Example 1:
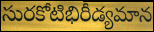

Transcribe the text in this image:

సురకోటిభిరీడ్యమాన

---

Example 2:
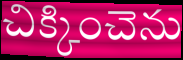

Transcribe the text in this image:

చిక్కించెను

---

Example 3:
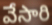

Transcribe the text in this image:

వేసారి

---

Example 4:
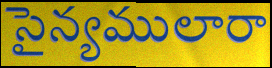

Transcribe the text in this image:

సైన్యములారా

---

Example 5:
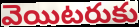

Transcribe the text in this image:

వెయిటరుకు